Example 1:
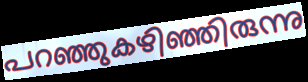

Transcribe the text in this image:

പറഞ്ഞുകഴിഞ്ഞിരുന്നു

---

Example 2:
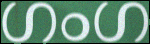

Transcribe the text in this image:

ഗംഗ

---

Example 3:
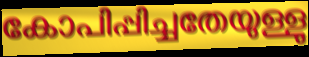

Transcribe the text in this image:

കോപിപ്പിച്ചതേയുള്ളു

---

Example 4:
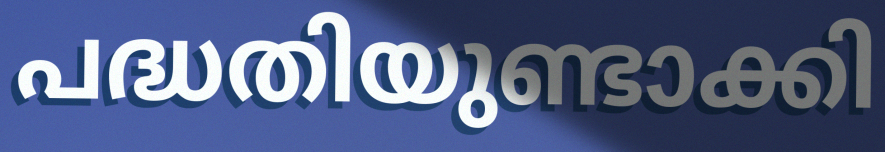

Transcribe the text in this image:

പദ്ധതിയുണ്ടാക്കി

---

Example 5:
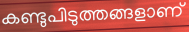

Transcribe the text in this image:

കണ്ടുപിടുത്തങ്ങളാണ്